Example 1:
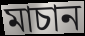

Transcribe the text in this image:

মাচান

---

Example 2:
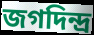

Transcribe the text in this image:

জগদিন্দ্র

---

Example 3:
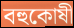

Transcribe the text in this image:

বহুকোষী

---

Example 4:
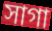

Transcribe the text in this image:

সাগা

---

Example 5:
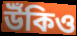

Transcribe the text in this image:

উঁকিও